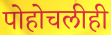
पोहोचलीही